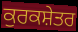
ਕੁਰਕਸ਼ੇਤਰ